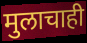
मुलाचाही